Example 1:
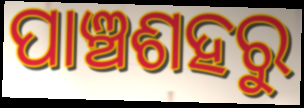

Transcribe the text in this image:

ପାଞ୍ଚଶହରୁ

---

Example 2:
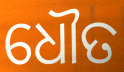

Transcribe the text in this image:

ଧୌତ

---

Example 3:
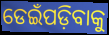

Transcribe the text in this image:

ଡେଇଁପଡ଼ିବାକୁ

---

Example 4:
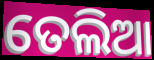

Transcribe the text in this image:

ତେଲିଆ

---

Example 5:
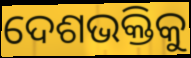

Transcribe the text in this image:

ଦେଶଭକ୍ତିକୁ